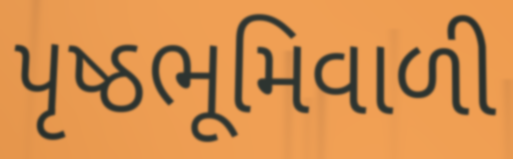
પૃષ્ઠભૂમિવાળી